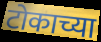
टोकाच्या